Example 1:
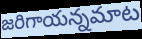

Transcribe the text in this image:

జరిగాయన్నమాట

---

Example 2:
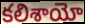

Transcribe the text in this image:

కలిశాయో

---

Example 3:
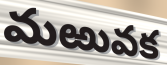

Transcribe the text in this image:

మఱువక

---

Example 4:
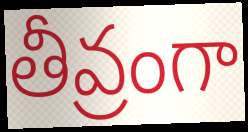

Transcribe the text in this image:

తీవ్రంగా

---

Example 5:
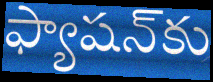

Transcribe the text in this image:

ఫ్యాషన్‌కు